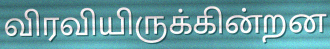
விரவியிருக்கின்றன